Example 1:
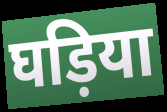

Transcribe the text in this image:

घड़िया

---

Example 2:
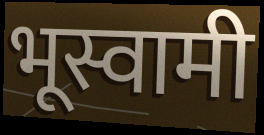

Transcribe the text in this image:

भूस्वामी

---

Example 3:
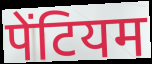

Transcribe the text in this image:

पेंटियम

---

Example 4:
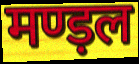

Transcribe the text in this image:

मण्ड़ल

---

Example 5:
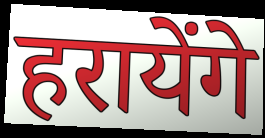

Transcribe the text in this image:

हरायेंगे